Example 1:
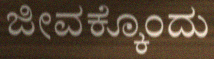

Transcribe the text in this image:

ಜೀವಕ್ಕೊಂದು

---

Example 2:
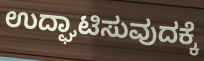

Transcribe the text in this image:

ಉದ್ಘಾಟಿಸುವುದಕ್ಕೆ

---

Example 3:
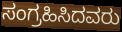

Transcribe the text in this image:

ಸಂಗ್ರಹಿಸಿದವರು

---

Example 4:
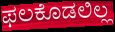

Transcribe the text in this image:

ಫಲಕೊಡಲಿಲ್ಲ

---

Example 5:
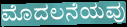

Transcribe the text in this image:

ಮೊದಲನೆಯವು